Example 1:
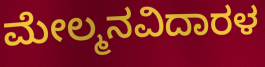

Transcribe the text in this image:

ಮೇಲ್ಮನವಿದಾರಳ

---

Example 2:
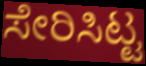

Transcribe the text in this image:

ಸೇರಿಸಿಟ್ಟ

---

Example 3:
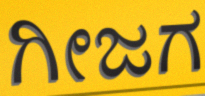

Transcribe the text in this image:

ಗೀಜಗ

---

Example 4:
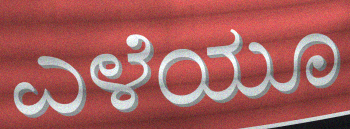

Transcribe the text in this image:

ಎಳೆಯೂ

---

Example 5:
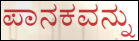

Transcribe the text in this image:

ಪಾನಕವನ್ನು